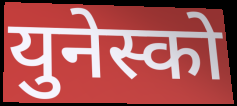
युनेस्को